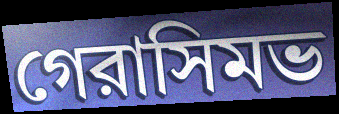
গেরাসিমভ